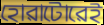
হোৱাটোৱেই